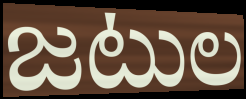
జటుల